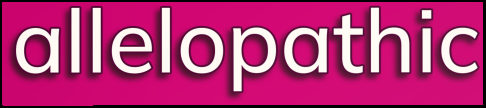
allelopathic